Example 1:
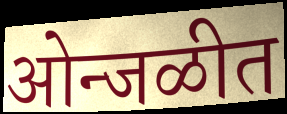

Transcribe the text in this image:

ओन्जळीत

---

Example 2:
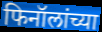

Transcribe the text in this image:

फिनॉलांच्या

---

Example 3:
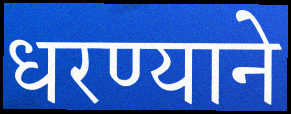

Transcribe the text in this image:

धरण्याने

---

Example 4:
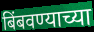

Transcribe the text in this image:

बिंबवण्याच्या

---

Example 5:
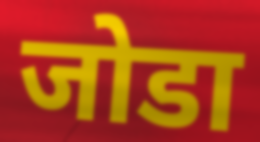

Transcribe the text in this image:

जोडा